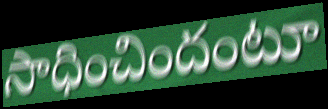
సాధించిందంటూ